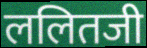
ललितजी